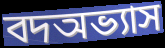
বদঅভ্যাস